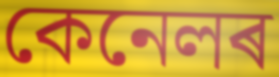
কেনেলৰ